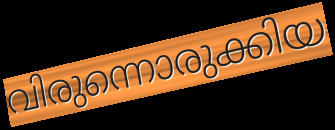
വിരുന്നൊരുക്കിയ